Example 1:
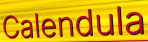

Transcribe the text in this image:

Calendula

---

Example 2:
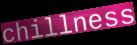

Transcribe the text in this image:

chillness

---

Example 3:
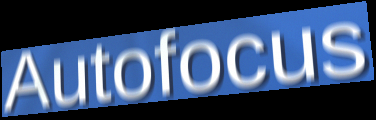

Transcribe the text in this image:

Autofocus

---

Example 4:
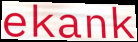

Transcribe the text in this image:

ekank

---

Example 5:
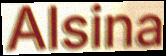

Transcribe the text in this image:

Alsina